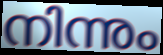
നിന്നും